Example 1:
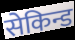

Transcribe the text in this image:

सेकिन्ड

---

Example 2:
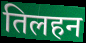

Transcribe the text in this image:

तिलहन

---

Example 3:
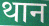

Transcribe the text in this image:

थान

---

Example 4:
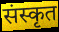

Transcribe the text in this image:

संस्‍कृत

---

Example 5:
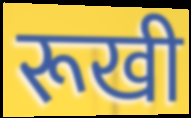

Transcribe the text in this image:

रूखी